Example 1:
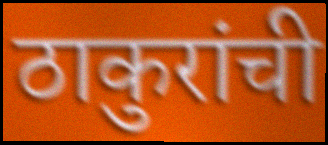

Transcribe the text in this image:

ठाकुरांची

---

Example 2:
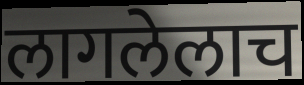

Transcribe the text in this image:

लागलेलाच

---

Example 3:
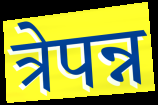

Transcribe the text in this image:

त्रेपन्न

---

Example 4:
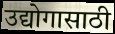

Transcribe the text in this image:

उद्योगासाठी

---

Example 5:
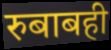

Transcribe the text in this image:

रुबाबही